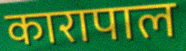
कारापाल